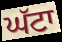
ਘੱਟਾ